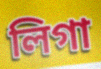
লিগা